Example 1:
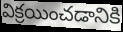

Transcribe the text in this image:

విక్రయించడానికి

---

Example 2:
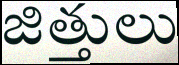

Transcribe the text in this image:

జిత్తులు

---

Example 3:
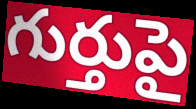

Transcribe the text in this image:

గుర్తుపై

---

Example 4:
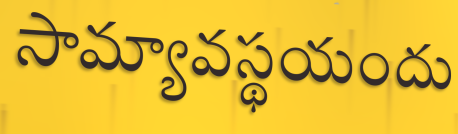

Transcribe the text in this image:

సామ్యావస్థయందు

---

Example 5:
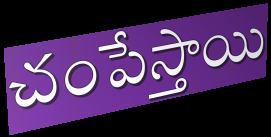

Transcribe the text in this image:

చంపేస్తాయి